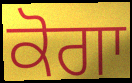
ਕੋਗਾ